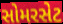
સોમરસેટ